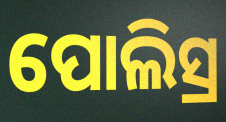
ପୋଲିସ୍ର